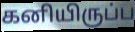
கனியிருப்ப